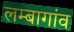
लम्बागांव